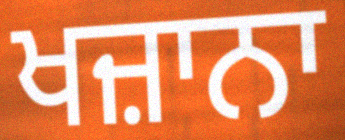
ਖਜ਼ਾਨਾ